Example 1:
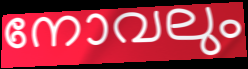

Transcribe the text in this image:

നോവലും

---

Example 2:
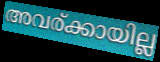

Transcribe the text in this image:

അവര്ക്കായില്ല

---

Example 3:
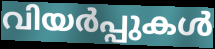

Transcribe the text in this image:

വിയർപ്പുകൾ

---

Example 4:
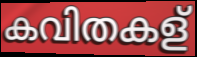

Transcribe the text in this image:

കവിതകള്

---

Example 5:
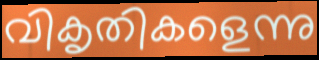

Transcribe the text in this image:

വികൃതികളെന്നു